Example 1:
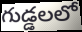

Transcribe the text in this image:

గుడ్డలలో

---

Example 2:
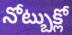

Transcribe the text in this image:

నోట్బుక్లో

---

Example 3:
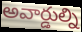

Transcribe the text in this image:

అవార్డుల్ని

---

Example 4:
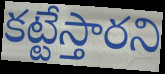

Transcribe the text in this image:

కట్టేస్తారని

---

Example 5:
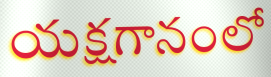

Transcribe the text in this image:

యక్షగానంలో